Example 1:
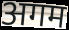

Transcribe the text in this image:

अगम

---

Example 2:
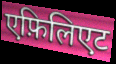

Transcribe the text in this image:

एफ़िलिएट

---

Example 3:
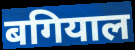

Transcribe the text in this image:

बगियाल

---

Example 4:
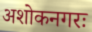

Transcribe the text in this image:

अशोकनगरः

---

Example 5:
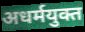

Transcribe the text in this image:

अधर्मयुक्त